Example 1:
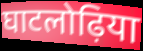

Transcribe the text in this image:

घाटलोढ़िया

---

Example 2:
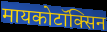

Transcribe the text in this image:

मायकोटॉक्सिन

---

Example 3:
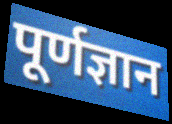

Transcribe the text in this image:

पूर्णज्ञान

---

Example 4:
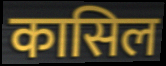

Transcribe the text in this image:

कासिल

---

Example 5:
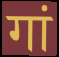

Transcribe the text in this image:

गां